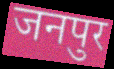
जनपुर